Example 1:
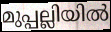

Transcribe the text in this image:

മുപ്പല്ലിയിൽ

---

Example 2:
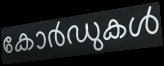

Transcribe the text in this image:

കോർഡുകൾ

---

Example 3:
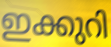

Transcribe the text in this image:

ഇക്കുറി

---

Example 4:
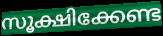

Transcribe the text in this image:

സൂക്ഷിക്കേണ്ട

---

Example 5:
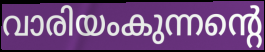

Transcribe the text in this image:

വാരിയംകുന്നന്റെ